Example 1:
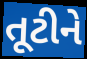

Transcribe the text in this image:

તૂટીને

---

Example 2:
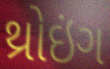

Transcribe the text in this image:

થ્રોઇંગ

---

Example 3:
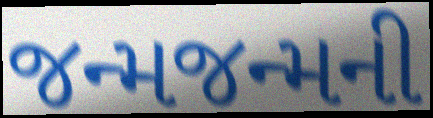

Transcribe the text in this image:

જન્મજન્મની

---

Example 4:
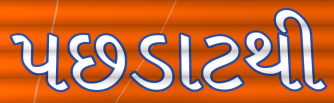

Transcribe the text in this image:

પછડાટથી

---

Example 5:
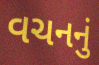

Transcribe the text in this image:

વચનનું